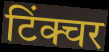
टिंक्चर